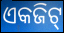
ଏକଜିଟ୍